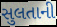
સુલતાની